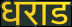
धराड